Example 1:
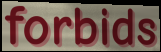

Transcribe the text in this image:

forbids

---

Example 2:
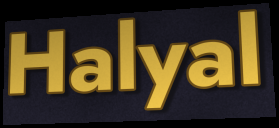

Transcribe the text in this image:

Halyal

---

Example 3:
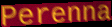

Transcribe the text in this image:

Perenna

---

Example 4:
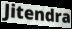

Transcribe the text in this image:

Jitendra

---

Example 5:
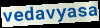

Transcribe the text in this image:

vedavyasa